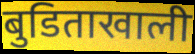
बुडिताखाली